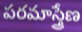
పరమాస్త్రేణ